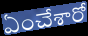
ఏంచేశారో